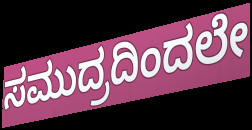
ಸಮುದ್ರದಿಂದಲೇ